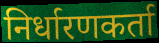
निर्धारणकर्ता